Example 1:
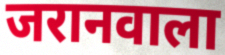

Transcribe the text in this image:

जरानवाला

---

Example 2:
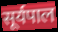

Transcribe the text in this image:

सूर्यपाल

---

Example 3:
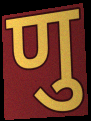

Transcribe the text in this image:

णु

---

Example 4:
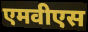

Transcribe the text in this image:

एमवीएस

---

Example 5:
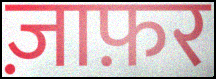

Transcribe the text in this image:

ज़ाफ़र